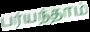
பர்யந்தாம்